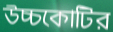
উচ্চকোটির